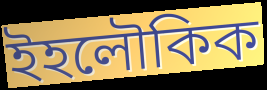
ইহলৌকিক